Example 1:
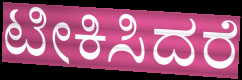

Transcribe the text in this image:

ಟೀಕಿಸಿದರೆ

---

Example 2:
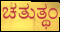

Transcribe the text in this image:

ಚತುತ್ಥಂ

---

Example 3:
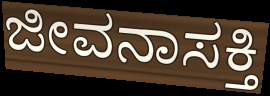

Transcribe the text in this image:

ಜೀವನಾಸಕ್ತಿ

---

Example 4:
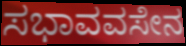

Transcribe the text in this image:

ಸಭಾವವಸೇನ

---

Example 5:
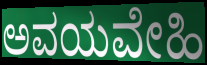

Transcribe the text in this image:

ಅವಯವೇಹಿ